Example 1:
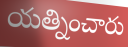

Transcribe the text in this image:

యత్నించారు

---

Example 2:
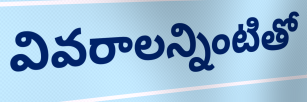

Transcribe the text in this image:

వివరాలన్నింటితో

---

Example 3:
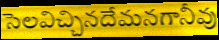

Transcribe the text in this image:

సెలవిచ్చినదేమనగానీవు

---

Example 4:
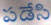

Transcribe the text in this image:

పడేసి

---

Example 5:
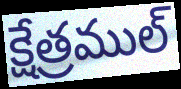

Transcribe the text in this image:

క్షేత్రముల్